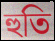
হুতি